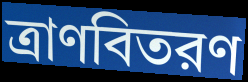
ত্রাণবিতরণ